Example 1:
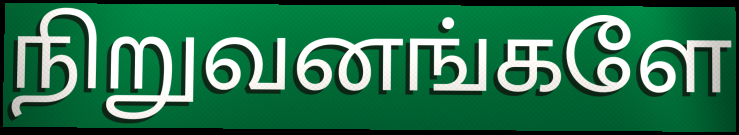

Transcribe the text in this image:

நிறுவனங்களே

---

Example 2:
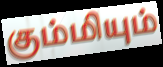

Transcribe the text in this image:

கும்மியும்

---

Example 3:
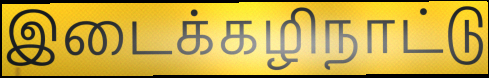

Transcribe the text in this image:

இடைக்கழிநாட்டு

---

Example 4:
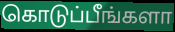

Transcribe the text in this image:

கொடுப்பீங்களா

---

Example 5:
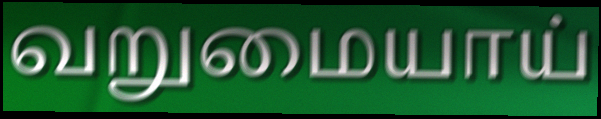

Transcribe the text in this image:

வறுமையாய்